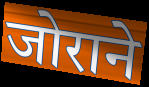
जोराने